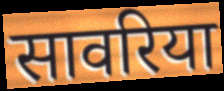
सावरिया